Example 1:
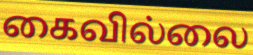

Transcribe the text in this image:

கைவில்லை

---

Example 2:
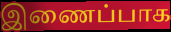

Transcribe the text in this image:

இணைப்பாக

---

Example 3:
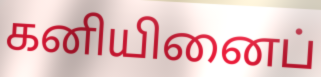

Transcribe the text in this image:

கனியினைப்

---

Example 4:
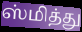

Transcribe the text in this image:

ஸ்மித்து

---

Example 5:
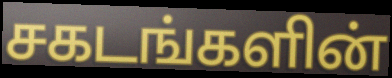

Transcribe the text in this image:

சகடங்களின்